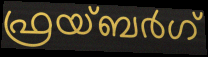
ഫ്രയ്ബർഗ്